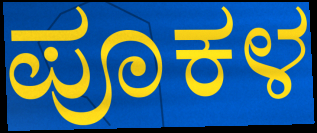
ಪೂಕಳ